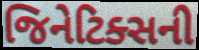
જિનેટિક્સની